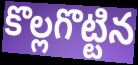
కొల్లగొట్టిన